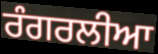
ਰੰਗਰਲੀਆ